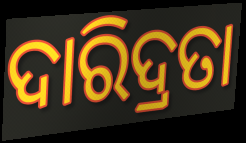
ଦାରିଦ୍ରତା